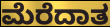
ಮೆರೆದಾತ